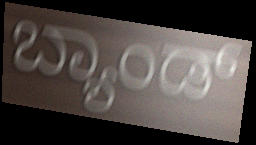
ಬ್ಯಾಂಡ್